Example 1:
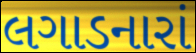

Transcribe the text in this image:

લગાડનારાં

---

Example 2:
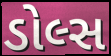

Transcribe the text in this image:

ડોલ્સ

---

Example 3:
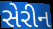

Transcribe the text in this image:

સેરીન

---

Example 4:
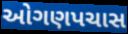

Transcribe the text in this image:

ઓગણપચાસ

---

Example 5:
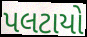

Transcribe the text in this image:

પલટાયો